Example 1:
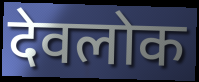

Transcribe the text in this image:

देवलोक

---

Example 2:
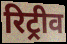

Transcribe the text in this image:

रिट्रीव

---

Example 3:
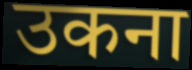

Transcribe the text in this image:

उकना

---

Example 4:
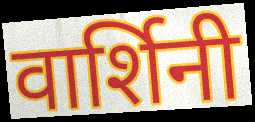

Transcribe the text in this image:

वार्शिनी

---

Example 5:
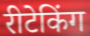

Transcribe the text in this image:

रीटेकिंग